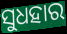
ସୁଧହାର